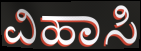
ವಿಹಾಸಿ